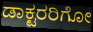
ಡಾಕ್ಟರರಿಗೋ